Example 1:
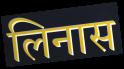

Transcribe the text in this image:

लिनास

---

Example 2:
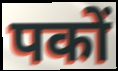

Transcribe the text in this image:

पकों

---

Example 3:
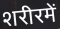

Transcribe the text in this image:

शरीरमें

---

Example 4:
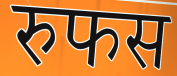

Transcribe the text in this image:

रुफस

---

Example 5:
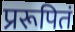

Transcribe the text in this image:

प्ररूपितं